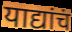
याद्यांचं